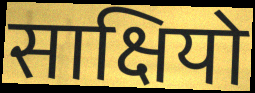
साक्षियो